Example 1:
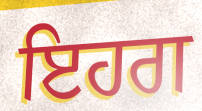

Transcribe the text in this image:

ਇਹਗ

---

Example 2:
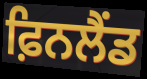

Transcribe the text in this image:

ਫ਼ਿਨਲੈਂਡ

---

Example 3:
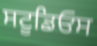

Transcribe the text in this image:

ਸਟੂਡਿਓਸ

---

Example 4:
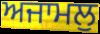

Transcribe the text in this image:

ਅਜਾਮਲੁ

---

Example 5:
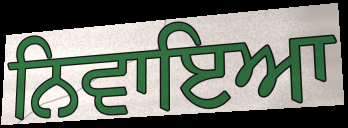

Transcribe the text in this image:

ਨਿਵਾਇਆ